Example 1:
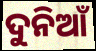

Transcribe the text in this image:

ଦୁନିଆଁ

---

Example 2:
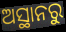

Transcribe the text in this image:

ଅସ୍ଥାନରୁ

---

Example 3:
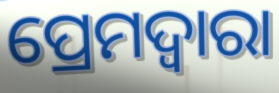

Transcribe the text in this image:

ପ୍ରେମଦ୍ୱାରା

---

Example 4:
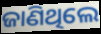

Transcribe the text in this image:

ଜାଣିଥିଲେ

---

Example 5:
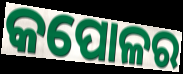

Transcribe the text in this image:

କପୋଳର